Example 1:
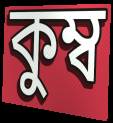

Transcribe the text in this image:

কুম্ব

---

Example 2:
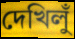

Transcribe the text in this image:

দেখিলুঁ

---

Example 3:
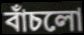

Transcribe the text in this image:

বাঁচলো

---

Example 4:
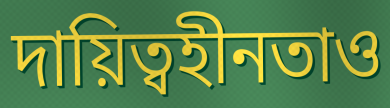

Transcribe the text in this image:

দায়িত্বহীনতাও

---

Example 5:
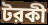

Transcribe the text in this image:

টরকী